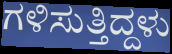
ಗಳಿಸುತ್ತಿದ್ದಳು